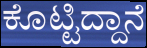
ಕೊಟ್ಟಿದ್ದಾನೆ